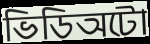
ভিডিঅটো